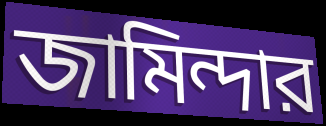
জামিন্দার